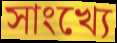
সাংখ্যে